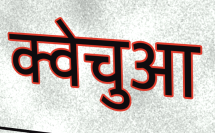
क्वेचुआ